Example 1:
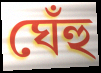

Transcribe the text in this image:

ঘেঁহু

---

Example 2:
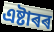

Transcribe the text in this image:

এষ্টাৰৰ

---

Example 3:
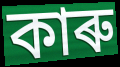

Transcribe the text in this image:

কাৰু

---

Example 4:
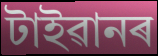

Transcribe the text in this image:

টাইৱানৰ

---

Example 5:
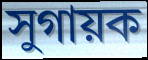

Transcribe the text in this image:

সুগায়ক